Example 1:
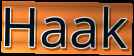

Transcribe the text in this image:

Haak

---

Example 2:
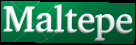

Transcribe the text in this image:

Maltepe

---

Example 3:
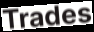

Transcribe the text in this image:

Trades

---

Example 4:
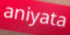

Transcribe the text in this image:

aniyata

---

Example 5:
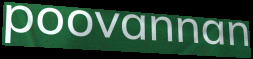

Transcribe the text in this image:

poovannan